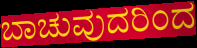
ಬಾಚುವುದರಿಂದ